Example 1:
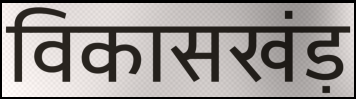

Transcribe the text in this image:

विकासखंड़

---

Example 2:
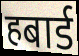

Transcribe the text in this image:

हबार्ड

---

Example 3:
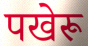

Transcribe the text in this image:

पखेरू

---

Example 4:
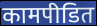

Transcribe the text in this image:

कामपीडित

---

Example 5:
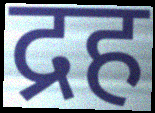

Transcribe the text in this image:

द्रह